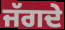
ਜੱਗਦੇ